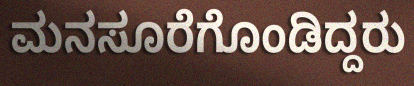
ಮನಸೂರೆಗೊಂಡಿದ್ದರು